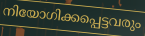
നിയോഗിക്കപ്പെട്ടവരും